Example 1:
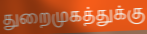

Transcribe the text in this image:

துறைமுகத்துக்கு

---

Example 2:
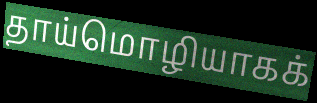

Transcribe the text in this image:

தாய்மொழியாகக்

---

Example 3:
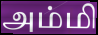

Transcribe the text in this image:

அம்மி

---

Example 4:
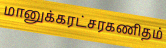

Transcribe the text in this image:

மானுக்கரட்சரகணிதம்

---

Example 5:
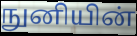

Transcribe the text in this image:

நுனியின்